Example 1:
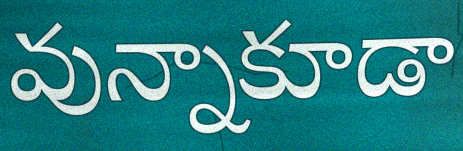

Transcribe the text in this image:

వున్నాకూడా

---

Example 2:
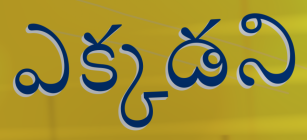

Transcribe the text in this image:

ఎక్కడని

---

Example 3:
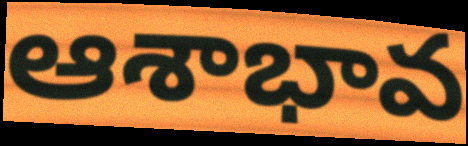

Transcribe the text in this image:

ఆశాభావ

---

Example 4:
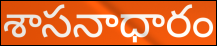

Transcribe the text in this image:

శాసనాధారం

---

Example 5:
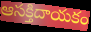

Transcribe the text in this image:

ఆసక్తిదాయకం